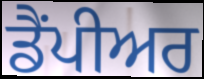
ਡੈਂਪੀਅਰ